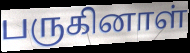
பருகினாள்